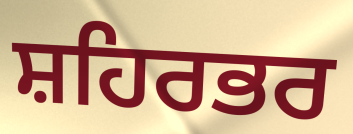
ਸ਼ਹਿਰਭਰ